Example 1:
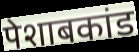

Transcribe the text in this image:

पेशाबकांड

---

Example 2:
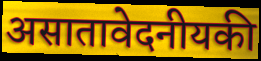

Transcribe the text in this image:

असातावेदनीयकी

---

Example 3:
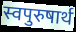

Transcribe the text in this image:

स्वपुरुषार्थ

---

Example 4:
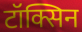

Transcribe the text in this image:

टॉक्सिन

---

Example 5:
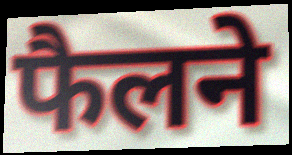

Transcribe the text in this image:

फैलने